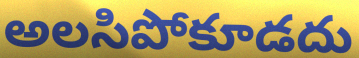
అలసిపోకూడదు